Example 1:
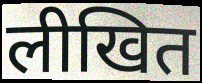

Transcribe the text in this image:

लीखित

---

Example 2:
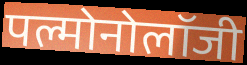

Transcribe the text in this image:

पल्मोनोलॉजी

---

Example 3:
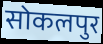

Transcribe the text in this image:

सोकलपुर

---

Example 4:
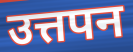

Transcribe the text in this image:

उत्तपन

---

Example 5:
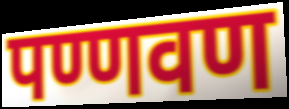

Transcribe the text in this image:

पण्णवण